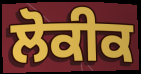
ਲੋਕੀਕ